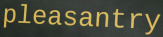
pleasantry